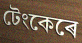
টেংকেৰে